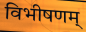
विभीषणम्